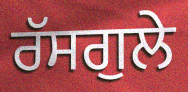
ਰੱਸਗੁਲੇ